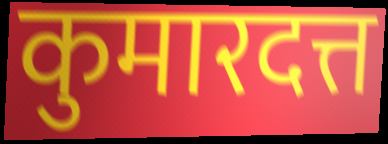
कुमारदत्त